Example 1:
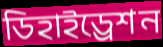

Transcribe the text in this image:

ডিহাইড্রেশন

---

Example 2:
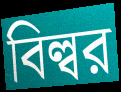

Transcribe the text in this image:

বিল্বর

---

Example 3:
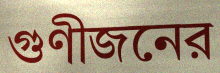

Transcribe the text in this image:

গুণীজনের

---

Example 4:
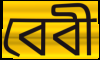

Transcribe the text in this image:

বেবী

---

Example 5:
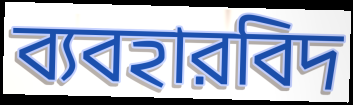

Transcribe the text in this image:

ব্যবহারবিদ